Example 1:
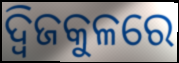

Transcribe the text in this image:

ଦ୍ୱିଜକୁଳରେ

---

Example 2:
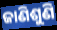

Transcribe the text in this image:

ଜାଣିଶୁଣି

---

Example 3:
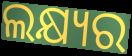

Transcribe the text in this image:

ଲକ୍ଷ୍ୟର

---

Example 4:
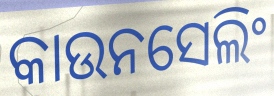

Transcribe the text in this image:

କାଉନସେଲିଂ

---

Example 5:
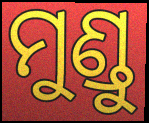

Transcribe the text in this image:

ମୁଣ୍ଡୁ